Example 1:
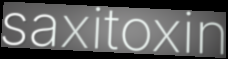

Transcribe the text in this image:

saxitoxin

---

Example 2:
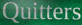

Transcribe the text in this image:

Quitters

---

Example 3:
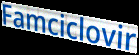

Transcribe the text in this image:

Famciclovir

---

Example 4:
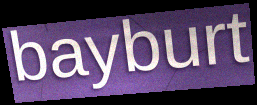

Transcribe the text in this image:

bayburt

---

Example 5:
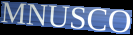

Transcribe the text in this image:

MNUSCO